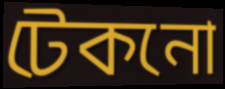
টেকনো